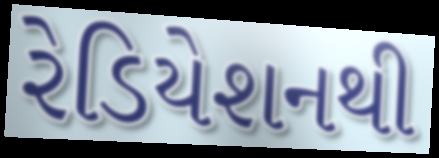
રેડિયેશનથી